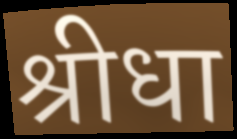
श्रीधा